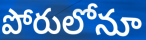
పోరులోనూ